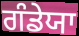
ਗੰਡੇਯਾ